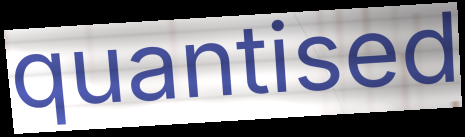
quantised